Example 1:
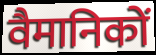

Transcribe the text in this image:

वैमानिकों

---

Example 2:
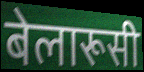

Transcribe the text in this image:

बेलारूसी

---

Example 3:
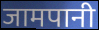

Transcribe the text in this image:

जामपानी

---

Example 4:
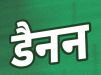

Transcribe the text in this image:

डैनन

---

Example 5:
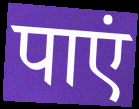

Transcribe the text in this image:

पाएं